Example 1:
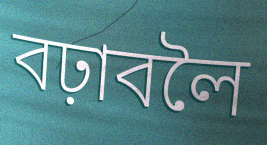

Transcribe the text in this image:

বঢ়াবলৈ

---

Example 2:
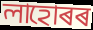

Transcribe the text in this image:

লাহোৰৰ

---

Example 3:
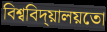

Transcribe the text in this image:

বিশ্ববিদ্য়ালয়তো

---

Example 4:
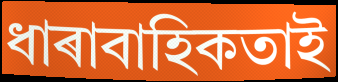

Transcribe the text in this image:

ধাৰাবাহিকতাই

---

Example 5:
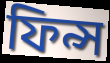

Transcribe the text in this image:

ফিন্স